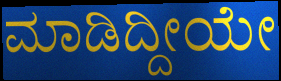
ಮಾಡಿದ್ದೀಯೇ